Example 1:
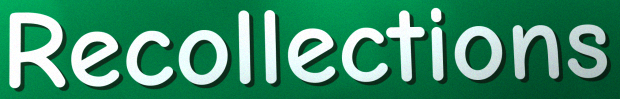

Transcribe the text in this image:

Recollections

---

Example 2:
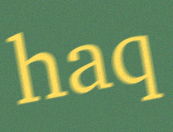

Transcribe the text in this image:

haq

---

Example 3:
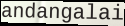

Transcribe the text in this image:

andangalai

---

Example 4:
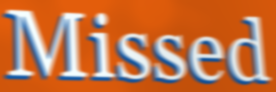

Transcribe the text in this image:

Missed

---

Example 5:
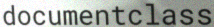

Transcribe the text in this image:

documentclass